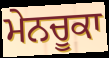
ਮੇਨਚੂਕਾ